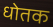
धोतक